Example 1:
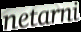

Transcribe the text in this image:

netarni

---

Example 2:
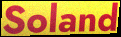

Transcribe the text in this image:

Soland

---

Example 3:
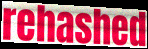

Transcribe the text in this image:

rehashed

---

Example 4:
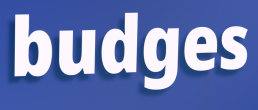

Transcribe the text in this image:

budges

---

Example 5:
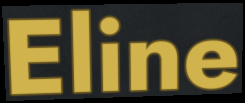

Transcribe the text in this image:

Eline